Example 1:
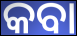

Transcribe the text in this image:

କବା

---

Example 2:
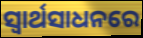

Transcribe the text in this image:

ସ୍ବାର୍ଥସାଧନରେ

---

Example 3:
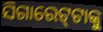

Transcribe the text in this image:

ସିଗାରେଟ୍‍ଟାକୁ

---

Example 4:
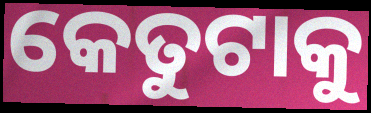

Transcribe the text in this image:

କେତୁଟାକୁ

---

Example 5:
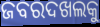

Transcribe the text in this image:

ଜବରଦଖଲକୁ